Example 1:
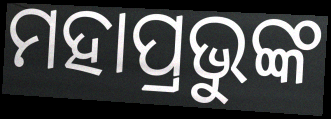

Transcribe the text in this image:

ମହାପ୍ରଭୁଙ୍କ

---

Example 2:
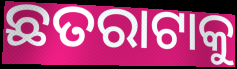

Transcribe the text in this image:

ଛତରାଟାକୁ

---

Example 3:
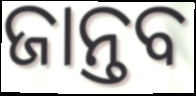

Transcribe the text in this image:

ଜାନ୍ତବ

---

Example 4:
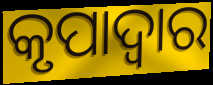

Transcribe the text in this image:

କୃପାଦ୍ଵାର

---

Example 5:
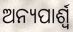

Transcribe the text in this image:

ଅନ୍ୟପାର୍ଶ୍ୱ